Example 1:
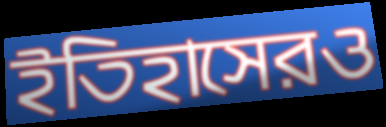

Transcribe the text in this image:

ইতিহাসেরও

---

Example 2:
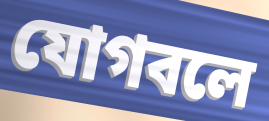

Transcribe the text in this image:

যোগবলে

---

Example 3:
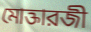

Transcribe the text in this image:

মোক্তারজী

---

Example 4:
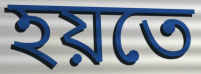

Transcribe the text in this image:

হয়তে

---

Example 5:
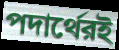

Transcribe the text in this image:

পদার্থেরই